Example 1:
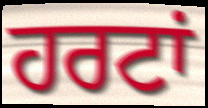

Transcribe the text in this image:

ਹਰਟਾਂ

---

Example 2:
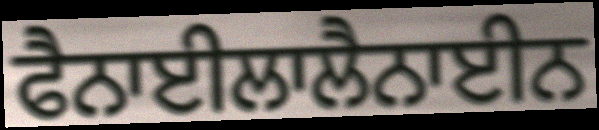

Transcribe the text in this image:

ਫੈਨਾਈਲਾਲੈਨਾਈਨ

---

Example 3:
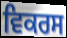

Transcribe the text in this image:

ਵਿਕਰਸ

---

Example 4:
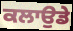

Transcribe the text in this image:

ਕਲਾਉਡੇ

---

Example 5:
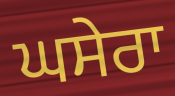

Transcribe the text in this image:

ਘਸੇਰਾ